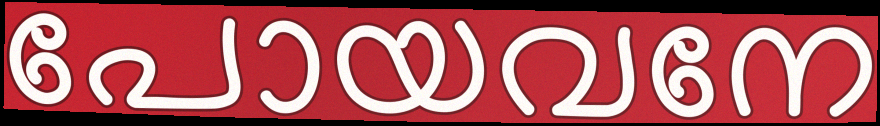
പോയവനേ